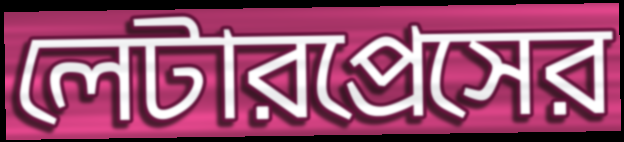
লেটারপ্রেসের